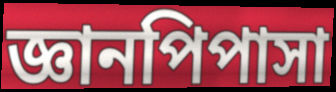
জ্ঞানপিপাসা